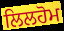
ਲਿਲਹੋਮ